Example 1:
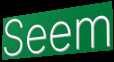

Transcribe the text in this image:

Seem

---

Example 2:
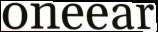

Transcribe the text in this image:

oneear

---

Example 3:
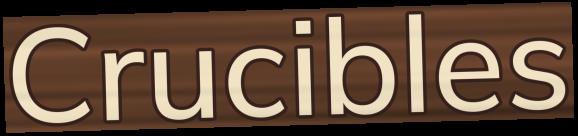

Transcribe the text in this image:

Crucibles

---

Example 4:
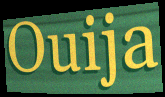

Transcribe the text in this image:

Ouija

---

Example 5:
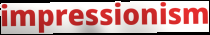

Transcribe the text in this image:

impressionism